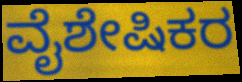
ವೈಶೇಷಿಕರ